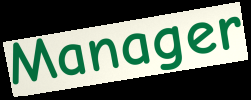
Manager